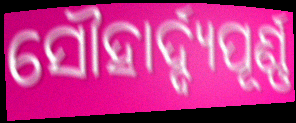
ସୌହାର୍ଦ୍ଦ୍ୟପୂର୍ଣ୍ଣ